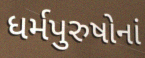
ધર્મપુરુષોનાં